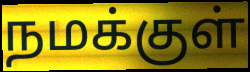
நமக்குள்